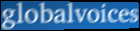
globalvoices